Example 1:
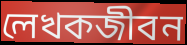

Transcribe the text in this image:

লেখকজীবন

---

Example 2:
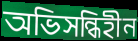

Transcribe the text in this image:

অভিসন্ধিহীন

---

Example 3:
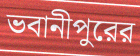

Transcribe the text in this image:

ভবানীপুরের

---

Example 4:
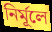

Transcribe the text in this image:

নির্মূলে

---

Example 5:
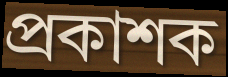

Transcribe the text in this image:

প্রকাশক